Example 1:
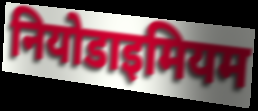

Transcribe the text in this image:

नियोडाइमियम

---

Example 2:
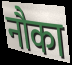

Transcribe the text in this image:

नौका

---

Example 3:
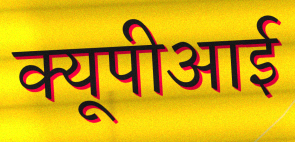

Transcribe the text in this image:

क्यूपीआई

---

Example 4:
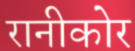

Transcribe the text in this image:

रानीकोर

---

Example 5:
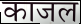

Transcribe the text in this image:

काजल